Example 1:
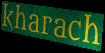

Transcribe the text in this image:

kharach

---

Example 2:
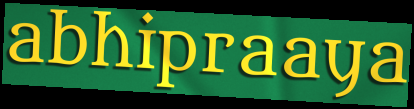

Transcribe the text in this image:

abhipraaya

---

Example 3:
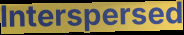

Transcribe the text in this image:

Interspersed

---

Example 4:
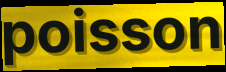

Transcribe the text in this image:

poisson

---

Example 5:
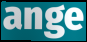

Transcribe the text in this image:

ange